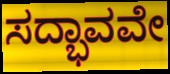
ಸದ್ಭಾವವೇ